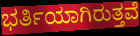
ಭರ್ತಿಯಾಗಿರುತ್ತವೆ